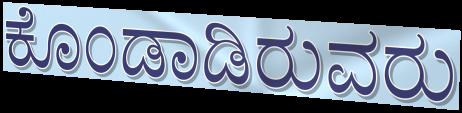
ಕೊಂಡಾಡಿರುವರು